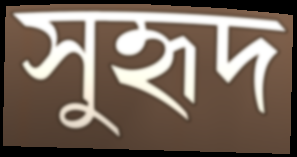
সুহৃদ